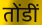
तोंडीं